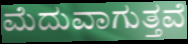
ಮೆದುವಾಗುತ್ತವೆ